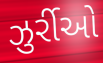
ઝુર્રીઓ